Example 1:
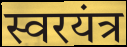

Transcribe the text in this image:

स्वरयंत्र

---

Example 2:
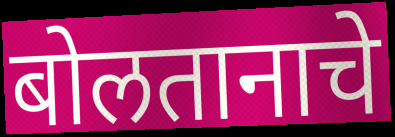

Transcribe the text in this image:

बोलतानाचे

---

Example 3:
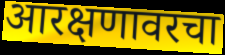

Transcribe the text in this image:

आरक्षणावरचा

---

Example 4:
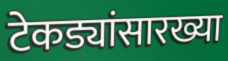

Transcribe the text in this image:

टेकड्यांसारख्या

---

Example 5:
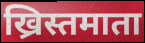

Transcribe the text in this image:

ख्रिस्तमाता